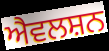
ਐਵਲਸ਼ਨ